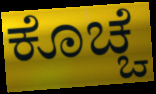
ಕೊಚ್ಚೆ